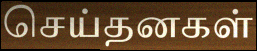
செய்தனகள்